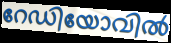
റേഡിയോവിൽ